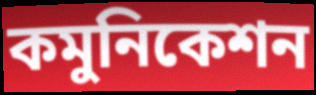
কমুনিকেশন